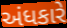
અંધકારે